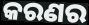
କରଣର